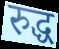
रुद्ध